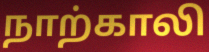
நாற்காலி